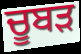
ਚੂਬੜ